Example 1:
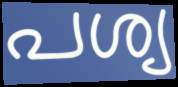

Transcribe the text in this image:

പശ്യ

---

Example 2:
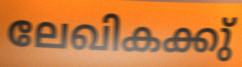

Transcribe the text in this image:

ലേഖികക്കു്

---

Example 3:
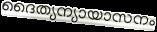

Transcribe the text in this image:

ദൈത്യന്യായാസനം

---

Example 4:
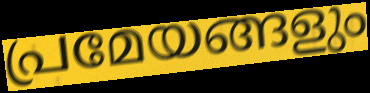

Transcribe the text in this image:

പ്രമേയങ്ങളും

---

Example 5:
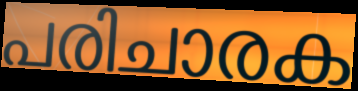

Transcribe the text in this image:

പരിചാരക